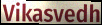
Vikasvedh